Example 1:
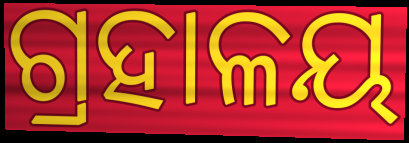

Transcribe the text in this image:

ଗ୍ରହାଳୟ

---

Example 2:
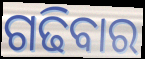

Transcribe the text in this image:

ଗଢିବାର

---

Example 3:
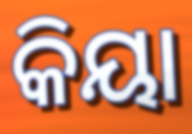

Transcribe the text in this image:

କିୟା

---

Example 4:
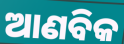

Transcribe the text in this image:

ଆଣବିକ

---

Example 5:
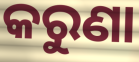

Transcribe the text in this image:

କରୁଣା